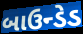
બાઉન્ડેડ